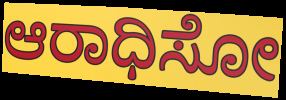
ಆರಾಧಿಸೋ